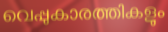
വെപ്പുകാരത്തികളും